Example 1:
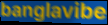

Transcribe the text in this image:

banglavibe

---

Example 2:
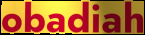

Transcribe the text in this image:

obadiah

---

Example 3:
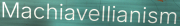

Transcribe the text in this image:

Machiavellianism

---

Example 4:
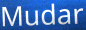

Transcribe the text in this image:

Mudar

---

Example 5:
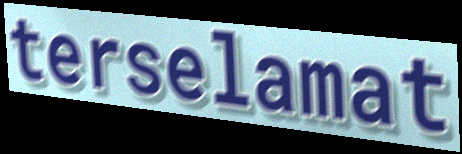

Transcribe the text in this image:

terselamat